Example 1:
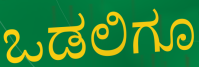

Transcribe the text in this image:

ಒಡಲಿಗೂ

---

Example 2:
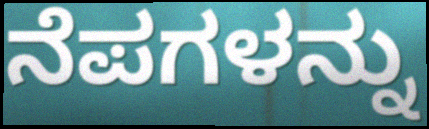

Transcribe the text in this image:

ನೆಪಗಳನ್ನು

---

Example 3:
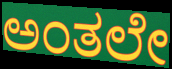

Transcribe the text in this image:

ಅಂತಲೇ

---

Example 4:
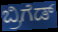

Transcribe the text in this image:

ಬ್ರಿಗೆಡ್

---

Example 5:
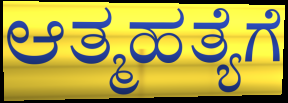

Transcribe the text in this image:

ಆತ್ಮಹತ್ಯೆಗೆ